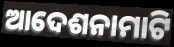
ଆଦେଶନାମାଟି